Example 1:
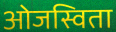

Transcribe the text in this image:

ओजस्विता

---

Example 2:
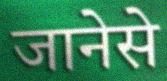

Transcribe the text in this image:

जानेसे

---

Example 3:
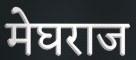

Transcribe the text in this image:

मेघराज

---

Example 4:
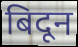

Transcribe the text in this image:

बिदून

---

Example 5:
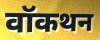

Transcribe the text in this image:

वॉकथन